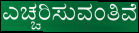
ಎಚ್ಚರಿಸುವಂತಿವೆ